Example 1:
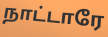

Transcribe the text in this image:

நாட்டாரே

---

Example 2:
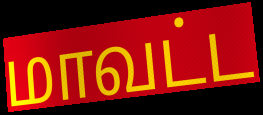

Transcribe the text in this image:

மாவட்ட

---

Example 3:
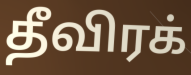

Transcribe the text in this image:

தீவிரக்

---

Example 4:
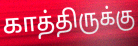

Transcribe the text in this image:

காத்திருக்கு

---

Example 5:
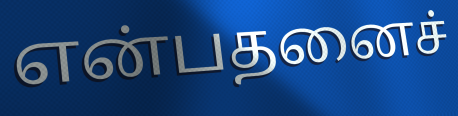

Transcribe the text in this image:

என்பதனைச்